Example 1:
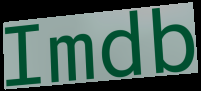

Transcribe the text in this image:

Imdb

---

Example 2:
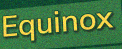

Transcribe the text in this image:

Equinox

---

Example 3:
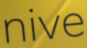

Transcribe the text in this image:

nive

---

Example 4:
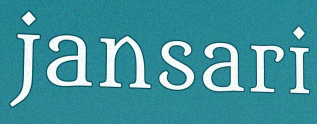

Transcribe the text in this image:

jansari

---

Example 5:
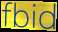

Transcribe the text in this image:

fbid